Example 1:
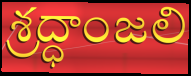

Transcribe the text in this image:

శ్రద్ధాంజలి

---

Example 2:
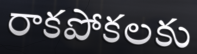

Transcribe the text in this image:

రాకపోకలకు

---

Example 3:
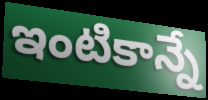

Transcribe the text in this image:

ఇంటికాన్నే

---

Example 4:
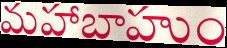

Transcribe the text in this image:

మహాబాహుం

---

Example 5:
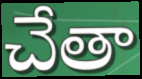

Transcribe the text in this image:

చేతా